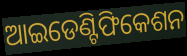
ଆଇଡେଣ୍ଟିଫିକେଶନ